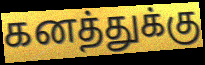
கனத்துக்கு